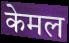
केमल